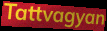
Tattvagyan